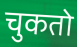
चुकतो